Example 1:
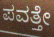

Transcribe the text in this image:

ಪವತ್ತೇ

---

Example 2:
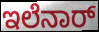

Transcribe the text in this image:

ಇಲೆನಾರ್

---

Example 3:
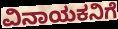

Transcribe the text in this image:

ವಿನಾಯಕನಿಗೆ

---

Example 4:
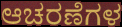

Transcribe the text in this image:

ಆಚರಣೆಗಳ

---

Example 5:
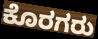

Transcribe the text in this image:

ಕೊರಗರು